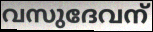
വസുദേവന്